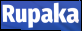
Rupaka